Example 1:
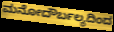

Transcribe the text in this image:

ಮನೋದೌರ್ಬಲ್ಯದಿಂದ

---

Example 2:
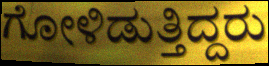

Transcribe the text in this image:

ಗೋಳಿಡುತ್ತಿದ್ದರು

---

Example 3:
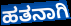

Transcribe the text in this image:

ಹತನಾಗಿ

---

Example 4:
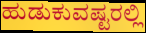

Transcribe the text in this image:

ಹುಡುಕುವಷ್ಟರಲ್ಲಿ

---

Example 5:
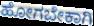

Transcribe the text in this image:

ಹೋಗಬೇಕಾಗಿ